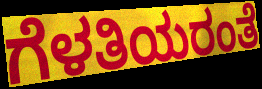
ಗೆಳತಿಯರಂತೆ